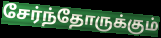
சேர்ந்தோருக்கும்